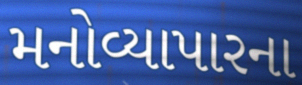
મનોવ્યાપારના